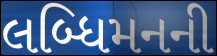
લબ્ધિમનની